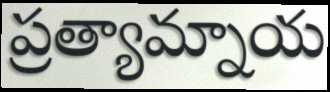
ప్రత్యామ్నాయ